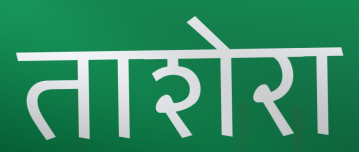
ताशेरा